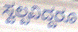
ಸ್ವಲ್ಪವಿದ್ದರೂ